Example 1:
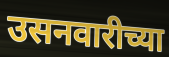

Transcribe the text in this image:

उसनवारीच्या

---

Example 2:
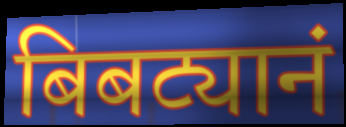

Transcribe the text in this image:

बिबट्यानं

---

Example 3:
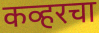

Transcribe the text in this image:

कव्हरचा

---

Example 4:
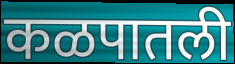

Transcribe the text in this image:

कळपातली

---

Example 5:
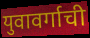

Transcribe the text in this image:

युवावर्गाची